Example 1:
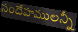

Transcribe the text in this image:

సందేహములన్నీ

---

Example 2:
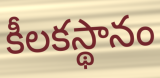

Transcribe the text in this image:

కీలకస్థానం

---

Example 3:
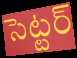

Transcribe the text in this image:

సెట్టర్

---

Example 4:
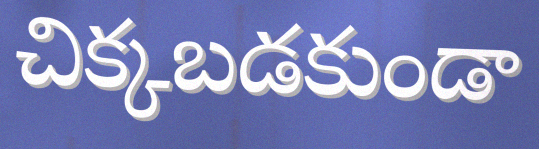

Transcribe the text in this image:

చిక్కబడకుండా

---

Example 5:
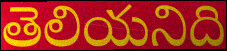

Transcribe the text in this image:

తెలియనిది